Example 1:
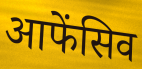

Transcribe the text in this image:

आफेंसिव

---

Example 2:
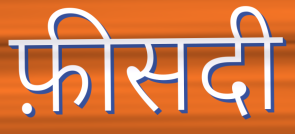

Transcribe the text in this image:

फ़ीसदी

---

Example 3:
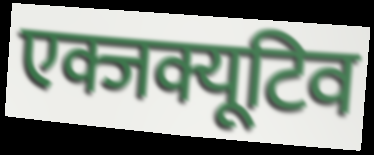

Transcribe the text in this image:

एक्जक्यूटिव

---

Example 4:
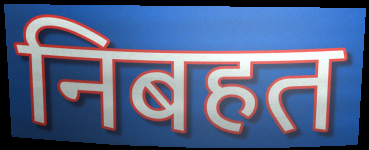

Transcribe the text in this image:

निबहत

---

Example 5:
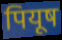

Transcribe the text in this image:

पियूष